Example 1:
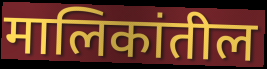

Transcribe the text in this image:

मालिकांतील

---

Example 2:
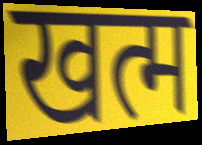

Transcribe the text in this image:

खत्म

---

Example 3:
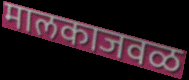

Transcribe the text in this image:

मालकाजवळ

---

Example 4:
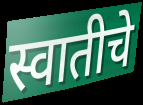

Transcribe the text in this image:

स्वातीचे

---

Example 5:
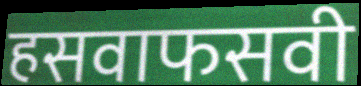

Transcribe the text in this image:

हसवाफसवी